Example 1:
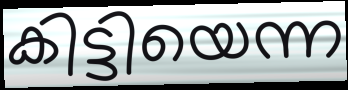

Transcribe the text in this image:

കിട്ടിയെന്ന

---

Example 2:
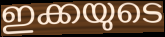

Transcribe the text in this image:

ഇക്കയുടെ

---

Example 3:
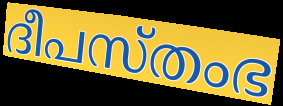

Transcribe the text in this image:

ദീപസ്തംഭ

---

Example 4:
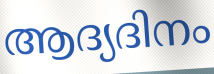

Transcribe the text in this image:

ആദ്യദിനം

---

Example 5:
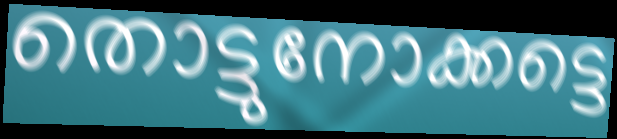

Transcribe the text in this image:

തൊട്ടുനോക്കട്ടെ